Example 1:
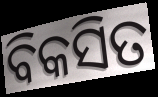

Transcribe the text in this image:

ବିକସିତ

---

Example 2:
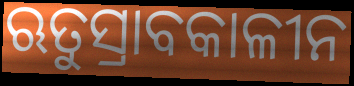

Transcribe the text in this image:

ଋତୁସ୍ରାବକାଳୀନ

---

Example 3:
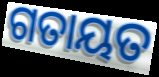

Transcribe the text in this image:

ଗତାୟତ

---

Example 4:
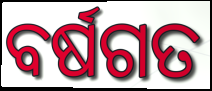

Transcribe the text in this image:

ବର୍ଷଗତ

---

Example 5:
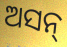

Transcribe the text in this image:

ଅସନ୍